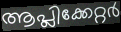
ആപ്ലിക്കേറ്റർ